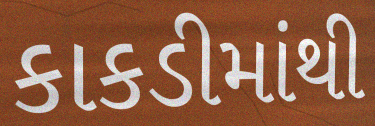
કાકડીમાંથી